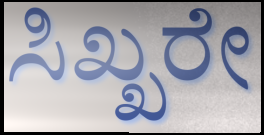
ಸಿಖ್ಖರೇ